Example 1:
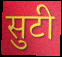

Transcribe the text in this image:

सुटी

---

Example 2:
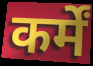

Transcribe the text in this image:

कर्में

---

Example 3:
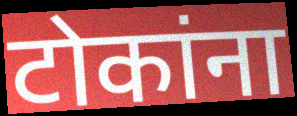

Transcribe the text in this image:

टोकांना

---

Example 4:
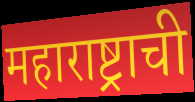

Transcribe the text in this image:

महाराष्ट्राची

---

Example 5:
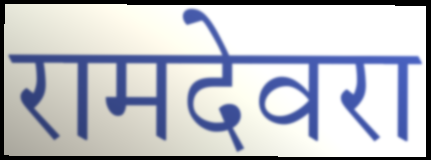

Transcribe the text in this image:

रामदेवरा